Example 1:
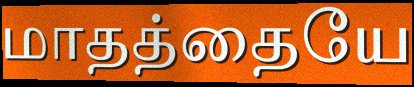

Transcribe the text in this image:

மாதத்தையே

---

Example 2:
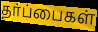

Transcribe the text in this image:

தர்ப்பைகள்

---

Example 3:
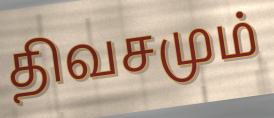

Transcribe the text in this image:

திவசமும்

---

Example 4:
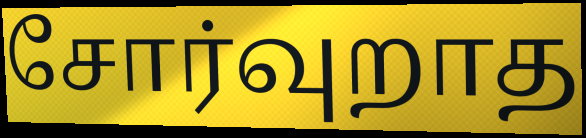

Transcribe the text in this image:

சோர்வுறாத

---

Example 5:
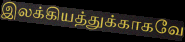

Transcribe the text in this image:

இலக்கியத்துக்காகவே